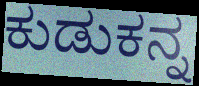
ಕುಡುಕನ್ನ